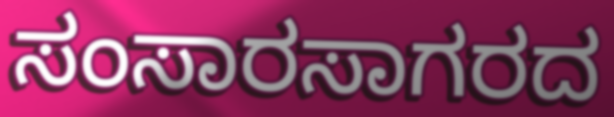
ಸಂಸಾರಸಾಗರದ